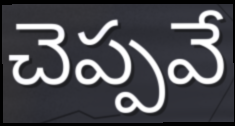
చెప్పవే